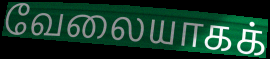
வேலையாகக்